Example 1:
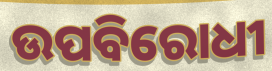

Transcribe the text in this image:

ଉପବିରୋଧୀ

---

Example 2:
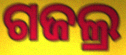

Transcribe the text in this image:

ଗଜଲ୍ର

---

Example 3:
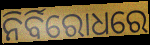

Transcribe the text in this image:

ନିର୍ବିରୋଧରେ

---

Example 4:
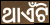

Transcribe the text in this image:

ଥାଏଁଟି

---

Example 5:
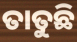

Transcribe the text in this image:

ତାତୁଛି